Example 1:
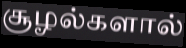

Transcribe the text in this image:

சூழல்களால்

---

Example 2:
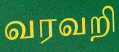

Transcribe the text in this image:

வரவறி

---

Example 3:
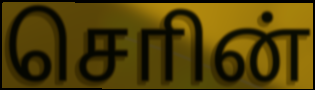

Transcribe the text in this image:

செரின்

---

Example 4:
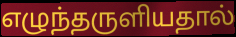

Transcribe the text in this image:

எழுந்தருளியதால்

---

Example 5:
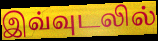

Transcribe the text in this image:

இவ்வுடலில்